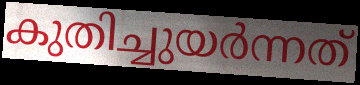
കുതിച്ചുയർന്നത്